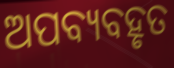
ଅପବ୍ୟବହୃତ